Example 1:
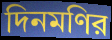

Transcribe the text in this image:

দিনমণির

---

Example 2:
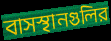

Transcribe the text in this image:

বাসস্থানগুলির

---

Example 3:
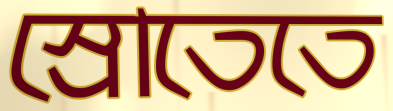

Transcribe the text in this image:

স্রোতেতে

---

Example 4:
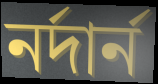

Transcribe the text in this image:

নর্দার্ন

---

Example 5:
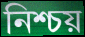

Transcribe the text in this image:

নিশ্চয়